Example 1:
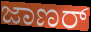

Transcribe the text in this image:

ಜಾಣರ್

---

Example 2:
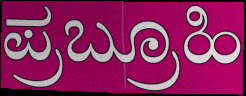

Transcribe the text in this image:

ಪ್ರಬ್ರೂಹಿ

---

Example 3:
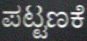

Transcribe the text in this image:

ಪಟ್ಟಣಕೆ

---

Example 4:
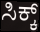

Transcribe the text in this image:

ಸಿಕ್ಕ್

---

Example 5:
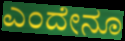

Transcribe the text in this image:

ಎಂದೇನೂ